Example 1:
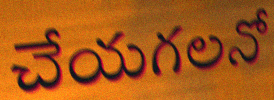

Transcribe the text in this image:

చేయగలనో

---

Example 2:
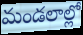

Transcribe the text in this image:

మండలాల్లో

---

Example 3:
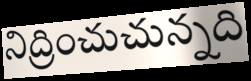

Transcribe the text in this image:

నిద్రించుచున్నది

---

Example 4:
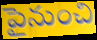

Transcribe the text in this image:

పైనుంచి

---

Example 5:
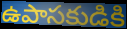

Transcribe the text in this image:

ఉపాసకుడికి